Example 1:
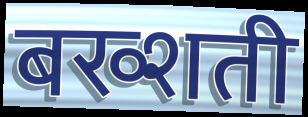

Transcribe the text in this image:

बख्शती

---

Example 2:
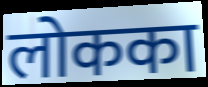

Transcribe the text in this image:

लोकका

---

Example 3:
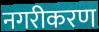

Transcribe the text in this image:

नगरीकरण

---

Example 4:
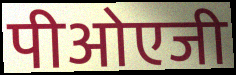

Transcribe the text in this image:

पीओएजी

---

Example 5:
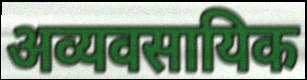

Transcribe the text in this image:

अव्यवसायिक